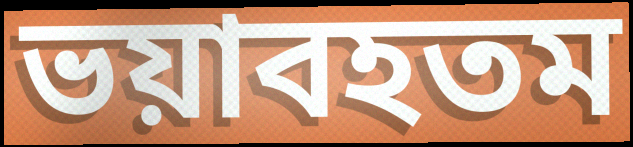
ভয়াবহতম